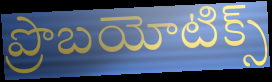
ప్రొబయోటిక్స్